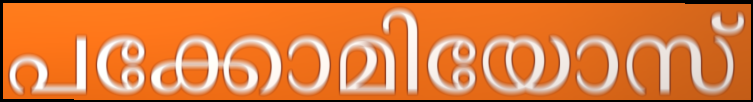
പക്കോമിയോസ്